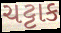
ચટ્ટાક